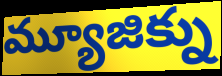
మ్యూజిక్ను